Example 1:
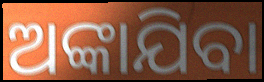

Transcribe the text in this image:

ଅଙ୍କାଯିବା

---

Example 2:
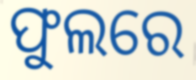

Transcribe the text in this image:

ଫୁଲରେ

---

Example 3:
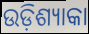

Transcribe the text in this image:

ଉଡ଼ିଶ୍ୟାକା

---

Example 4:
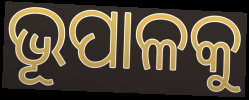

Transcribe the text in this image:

ଭୂପାଳକୁ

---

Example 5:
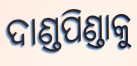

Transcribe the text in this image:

ଦାଣ୍ଡପିଣ୍ଡାକୁ